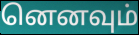
னெனவும்